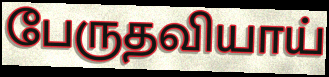
பேருதவியாய்